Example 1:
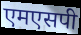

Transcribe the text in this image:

एमएसपी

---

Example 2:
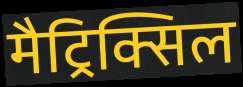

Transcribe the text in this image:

मैट्रिक्सिल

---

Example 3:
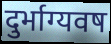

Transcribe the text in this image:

दुर्भाग्यवष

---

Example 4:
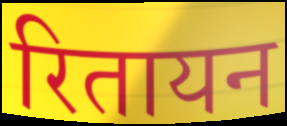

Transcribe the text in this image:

रितायन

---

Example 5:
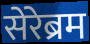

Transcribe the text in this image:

सेरेब्रम